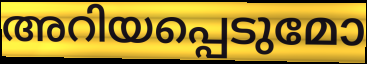
അറിയപ്പെടുമോ